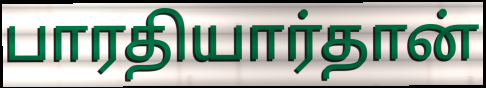
பாரதியார்தான்